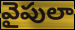
వైపులా